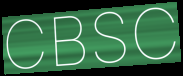
CBSC